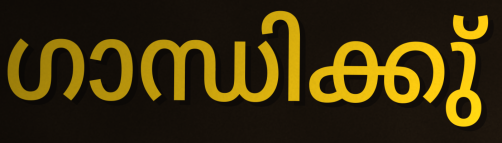
ഗാന്ധിക്കു്